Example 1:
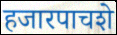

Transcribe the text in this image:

हजारपाचशे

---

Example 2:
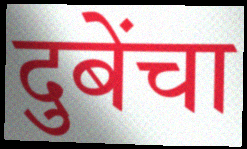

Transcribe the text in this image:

दुबेंचा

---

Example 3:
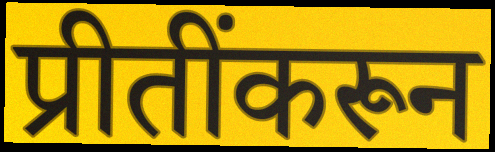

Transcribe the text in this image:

प्रीतींकरून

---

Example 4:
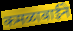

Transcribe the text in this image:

कमळाबाईने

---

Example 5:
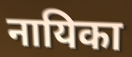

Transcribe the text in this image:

नायिका